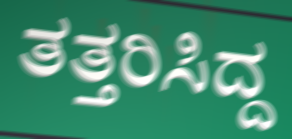
ತತ್ತರಿಸಿದ್ದ